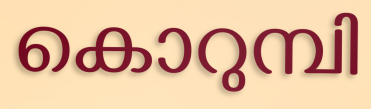
കൊറുമ്പി